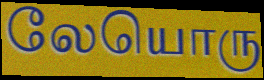
லேயொரு